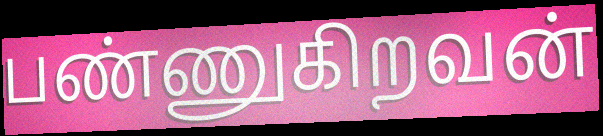
பண்ணுகிறவன்